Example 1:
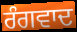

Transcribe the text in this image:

ਰੰਗਵਾਦ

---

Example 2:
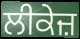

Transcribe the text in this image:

ਲੀਕੇਜ਼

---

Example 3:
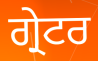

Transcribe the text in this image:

ਗ੍ਰੇਟਰ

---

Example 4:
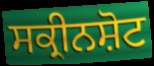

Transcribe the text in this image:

ਸਕ੍ਰੀਨਸ਼ੋਟ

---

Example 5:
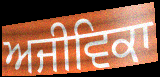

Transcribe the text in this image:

ਅਜੀਵਿਕਾ